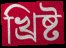
খ্রিষ্ট